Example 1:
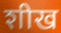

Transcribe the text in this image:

शीख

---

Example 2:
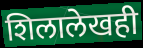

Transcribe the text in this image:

शिलालेखही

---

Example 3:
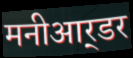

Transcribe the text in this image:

मनीआर्डर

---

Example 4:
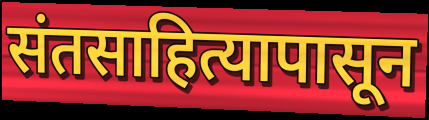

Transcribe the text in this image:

संतसाहित्यापासून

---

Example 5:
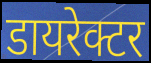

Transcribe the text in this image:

डायरेक्टर